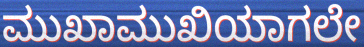
ಮುಖಾಮುಖಿಯಾಗಲೇ